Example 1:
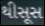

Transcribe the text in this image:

થીસૂસ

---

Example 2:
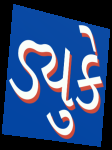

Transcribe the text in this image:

ડ્યુકે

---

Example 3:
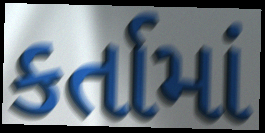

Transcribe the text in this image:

કર્તામાં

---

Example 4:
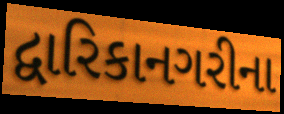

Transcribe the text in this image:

દ્વારિકાનગરીના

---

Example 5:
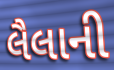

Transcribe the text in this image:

લૈલાની